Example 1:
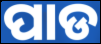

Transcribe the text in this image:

ପାଡ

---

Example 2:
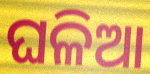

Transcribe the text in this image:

ଘଳିଆ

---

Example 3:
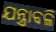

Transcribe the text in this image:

ଯନ୍ତ୍ରାବଳି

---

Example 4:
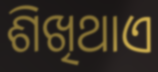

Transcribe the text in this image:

ଶିଖିଥାଏ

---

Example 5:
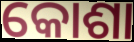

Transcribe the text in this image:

କୋଶା